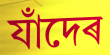
যাঁদেৰ